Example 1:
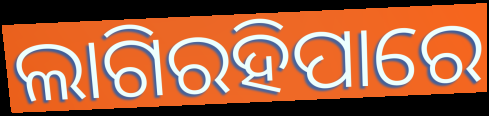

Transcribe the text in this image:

ଲାଗିରହିପାରେ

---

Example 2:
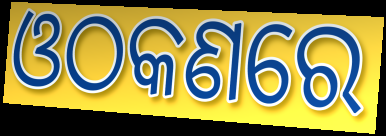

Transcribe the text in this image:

ଓଠକଣରେ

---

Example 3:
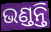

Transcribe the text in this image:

ଭଣ୍ଡନ୍ତି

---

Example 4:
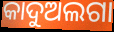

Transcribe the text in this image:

କାଦୁଅଲଗା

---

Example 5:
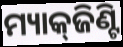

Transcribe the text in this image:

ମ୍ୟାକ୍‌ଜିଣ୍ଟି